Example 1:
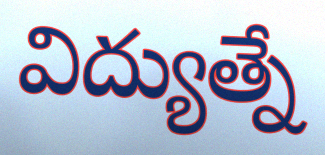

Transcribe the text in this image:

విద్యుత్నే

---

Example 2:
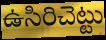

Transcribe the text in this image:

ఉసిరిచెట్టు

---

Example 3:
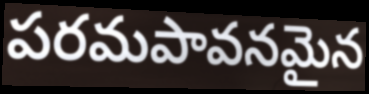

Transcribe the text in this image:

పరమపావనమైన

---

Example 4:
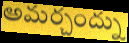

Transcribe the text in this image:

అమర్చంద్ను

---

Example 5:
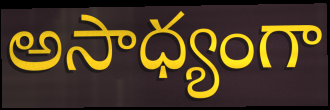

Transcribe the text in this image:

అసాధ్యంగా